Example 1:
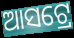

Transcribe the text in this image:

ଆସଟ୍ରେ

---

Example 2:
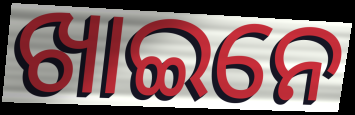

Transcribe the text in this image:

ଖାଇନେ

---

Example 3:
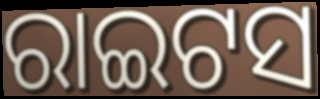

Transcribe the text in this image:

ରାଇଟସ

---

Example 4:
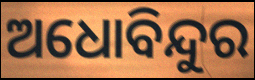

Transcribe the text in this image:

ଅଧୋବିନ୍ଦୁର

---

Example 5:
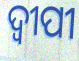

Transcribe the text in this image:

ଦ୍ଵୀପୀ